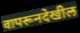
वापरूनदेखील